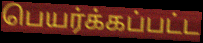
பெயர்க்கப்பட்ட